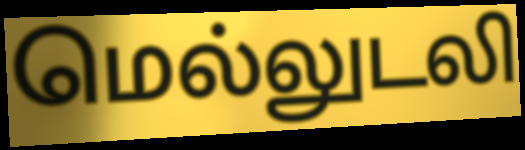
மெல்லுடலி